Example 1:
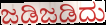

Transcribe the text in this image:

ಜಡಿಜಡಿದು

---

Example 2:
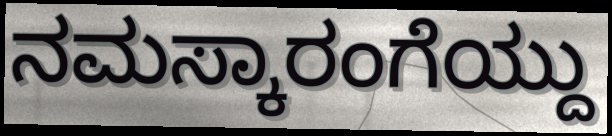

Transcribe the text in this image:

ನಮಸ್ಕಾರಂಗೆಯ್ದು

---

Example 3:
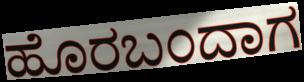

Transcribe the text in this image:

ಹೊರಬಂದಾಗ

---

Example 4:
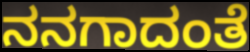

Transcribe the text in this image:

ನನಗಾದಂತೆ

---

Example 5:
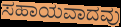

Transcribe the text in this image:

ಸಹಾಯವಾದವು